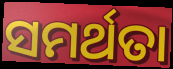
ସମର୍ଥତା